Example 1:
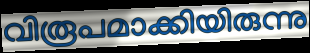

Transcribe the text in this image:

വിരൂപമാക്കിയിരുന്നു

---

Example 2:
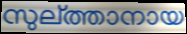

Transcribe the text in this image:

സുല്ത്താനായ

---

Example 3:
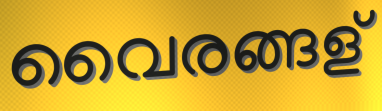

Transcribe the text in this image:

വൈരങ്ങള്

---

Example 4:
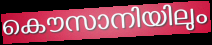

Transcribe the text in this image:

കൌസാനിയിലും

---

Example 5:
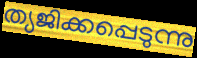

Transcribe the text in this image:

ത്യജിക്കപ്പെടുന്നു